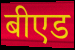
बीएड